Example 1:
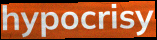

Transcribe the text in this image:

hypocrisy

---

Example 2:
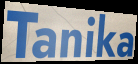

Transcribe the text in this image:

Tanika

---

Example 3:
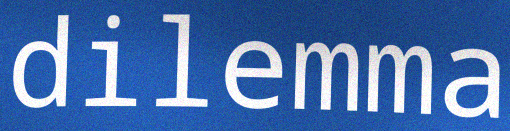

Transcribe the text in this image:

dilemma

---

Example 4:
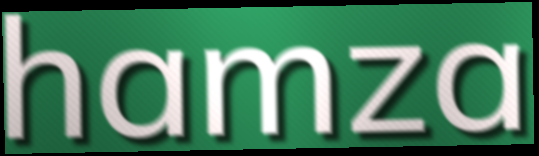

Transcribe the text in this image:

hamza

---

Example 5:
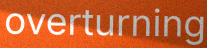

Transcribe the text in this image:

overturning